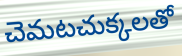
చెమటచుక్కలతో